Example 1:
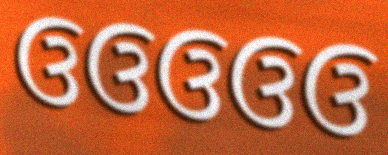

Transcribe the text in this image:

ઉઉઉઉઉ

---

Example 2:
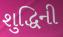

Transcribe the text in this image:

શુદ્ધિની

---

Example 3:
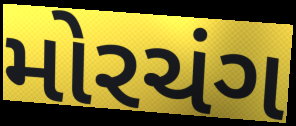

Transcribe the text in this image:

મોરચંગ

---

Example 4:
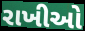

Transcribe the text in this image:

રાખીઓ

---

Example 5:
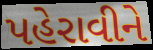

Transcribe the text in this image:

પહેરાવીને